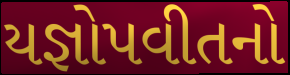
યજ્ઞોપવીતનો